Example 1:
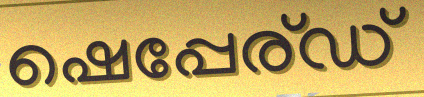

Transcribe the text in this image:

ഷെപ്പേര്ഡ്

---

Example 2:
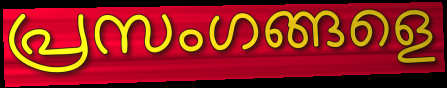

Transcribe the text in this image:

പ്രസംഗങ്ങളെ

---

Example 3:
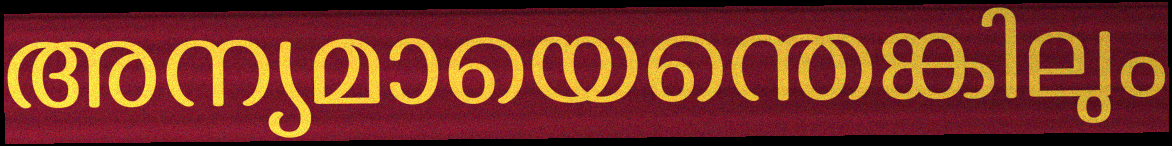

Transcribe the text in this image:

അന്യമായെന്തെങ്കിലും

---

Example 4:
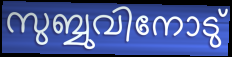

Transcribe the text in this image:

സുബ്ബുവിനോടു്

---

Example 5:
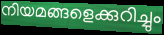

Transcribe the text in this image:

നിയമങ്ങളെക്കുറിച്ചും